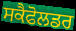
ਸਕੈਫੋਲਡਰ